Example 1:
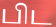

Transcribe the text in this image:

பிட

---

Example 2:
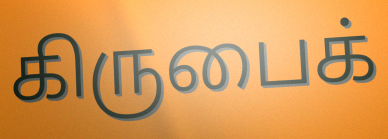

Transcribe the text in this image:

கிருபைக்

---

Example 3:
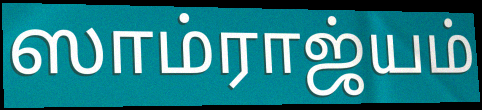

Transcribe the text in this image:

ஸாம்ராஜ்யம்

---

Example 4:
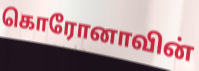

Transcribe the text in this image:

கொரோனாவின்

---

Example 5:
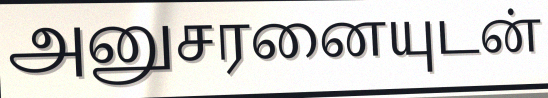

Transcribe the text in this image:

அனுசரனையுடன்